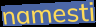
namesti